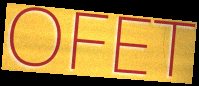
OFET